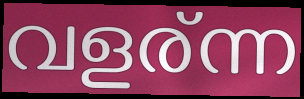
വളര്ന്ന